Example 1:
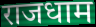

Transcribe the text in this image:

राजधाम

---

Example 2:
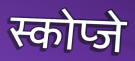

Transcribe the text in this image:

स्कोप्जे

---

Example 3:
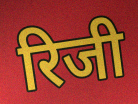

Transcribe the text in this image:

रिजी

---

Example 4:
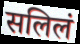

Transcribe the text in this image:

सलिलं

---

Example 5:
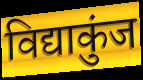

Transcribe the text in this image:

विद्याकुंज